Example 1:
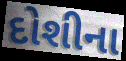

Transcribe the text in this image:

દોશીના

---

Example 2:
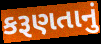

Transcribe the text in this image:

કરૂણતાનું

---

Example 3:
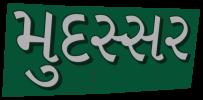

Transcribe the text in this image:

મુદસ્સર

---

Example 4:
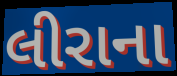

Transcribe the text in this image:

લીરાના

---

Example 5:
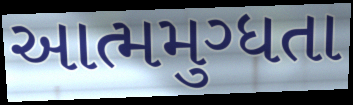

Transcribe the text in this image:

આત્મમુગ્ધતા